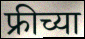
फ्रीच्या